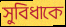
সুবিধাকে